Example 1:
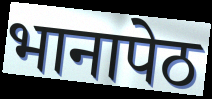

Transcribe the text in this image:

भानापेठ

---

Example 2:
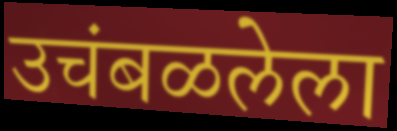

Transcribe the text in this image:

उचंबळलेला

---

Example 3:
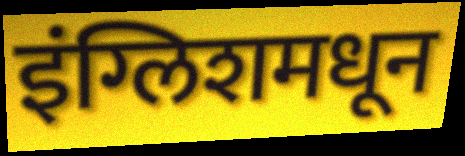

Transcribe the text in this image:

इंग्लिशमधून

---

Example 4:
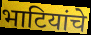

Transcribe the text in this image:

भाटियांचे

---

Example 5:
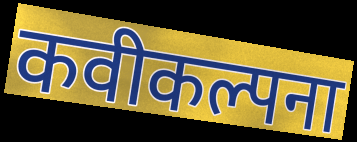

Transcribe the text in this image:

कवीकल्पना